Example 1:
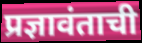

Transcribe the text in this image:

प्रज्ञावंताची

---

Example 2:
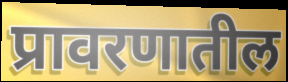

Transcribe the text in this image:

प्रावरणातील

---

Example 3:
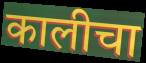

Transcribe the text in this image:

कालीचा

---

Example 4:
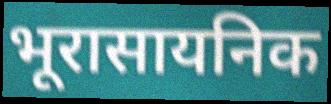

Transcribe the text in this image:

भूरासायनिक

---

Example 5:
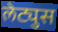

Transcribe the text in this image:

लेट्युस